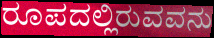
ರೂಪದಲ್ಲಿರುವವನು